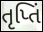
તૃપ્તિં